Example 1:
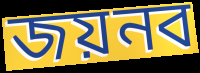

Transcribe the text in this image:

জয়নব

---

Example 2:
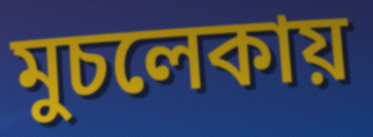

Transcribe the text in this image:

মুচলেকায়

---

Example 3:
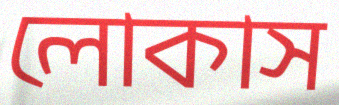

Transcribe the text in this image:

লোকাস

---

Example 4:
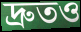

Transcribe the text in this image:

দ্রুতও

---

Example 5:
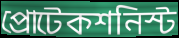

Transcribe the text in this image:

প্রোটেকশনিস্ট